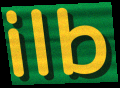
ilb